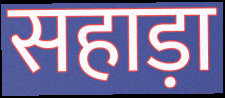
सहाड़ा